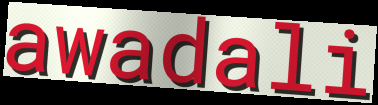
awadali